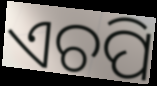
ଏଚପି